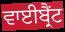
ਵਾਈਬ੍ਰੈਂਟ